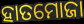
ହାତମୋଜା